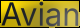
Avian